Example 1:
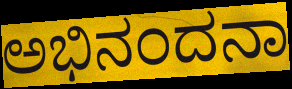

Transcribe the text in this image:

ಅಭಿನಂದನಾ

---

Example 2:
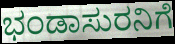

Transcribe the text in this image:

ಭಂಡಾಸುರನಿಗೆ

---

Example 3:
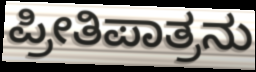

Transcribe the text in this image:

ಪ್ರೀತಿಪಾತ್ರನು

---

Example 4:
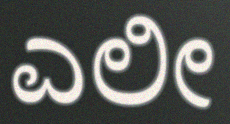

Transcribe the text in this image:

ಎಲೀ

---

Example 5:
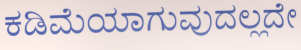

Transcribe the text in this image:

ಕಡಿಮೆಯಾಗುವುದಲ್ಲದೇ